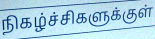
நிகழ்ச்சிகளுக்குள்